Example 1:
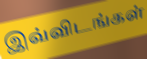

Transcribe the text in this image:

இவ்விடங்கள்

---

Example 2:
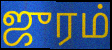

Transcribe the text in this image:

ஜுரம்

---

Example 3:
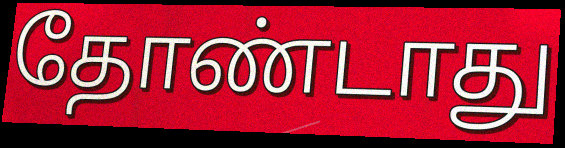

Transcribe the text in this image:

தோண்டாது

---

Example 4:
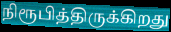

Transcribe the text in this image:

நிரூபித்திருக்கிறது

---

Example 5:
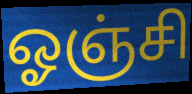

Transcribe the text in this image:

ஓஞ்சி